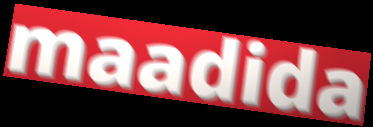
maadida